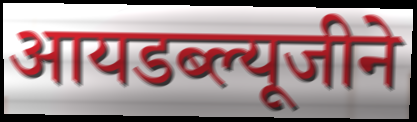
आयडब्ल्यूजीने